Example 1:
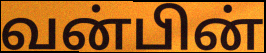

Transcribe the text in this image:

வன்பின்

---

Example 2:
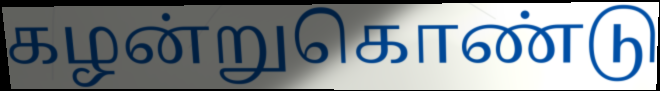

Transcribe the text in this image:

கழன்றுகொண்டு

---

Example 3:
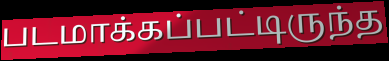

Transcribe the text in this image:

படமாக்கப்பட்டிருந்த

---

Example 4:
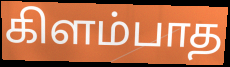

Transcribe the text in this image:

கிளம்பாத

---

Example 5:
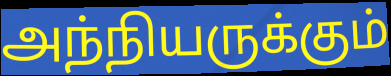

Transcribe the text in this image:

அந்நியருக்கும்